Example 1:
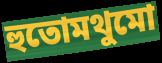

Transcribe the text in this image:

হুতোমথুমো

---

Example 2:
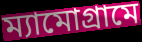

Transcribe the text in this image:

ম্যামোগ্রামে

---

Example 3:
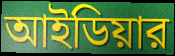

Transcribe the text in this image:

আইডিয়ার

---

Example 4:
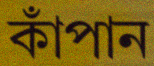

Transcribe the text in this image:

কাঁপান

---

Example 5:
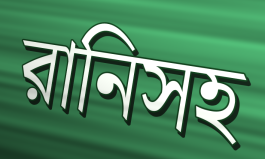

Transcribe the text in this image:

রানিসহ